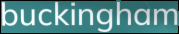
buckingham